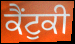
ਕੈਂਟੁਕੀ